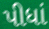
પીધાં